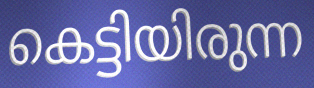
കെട്ടിയിരുന്ന